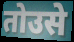
तोउसे